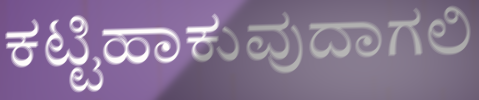
ಕಟ್ಟಿಹಾಕುವುದಾಗಲಿ